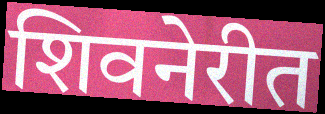
शिवनेरीत